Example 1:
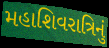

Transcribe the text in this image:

મહાશિવરાત્રિનું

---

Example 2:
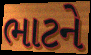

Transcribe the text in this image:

ભાટને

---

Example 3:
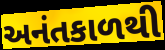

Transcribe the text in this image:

અનંતકાળથી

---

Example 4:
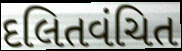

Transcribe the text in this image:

દલિતવંચિત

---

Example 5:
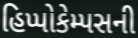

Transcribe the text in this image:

હિપ્પોકેમ્પસની